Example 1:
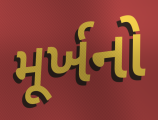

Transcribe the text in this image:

મૂર્ખનો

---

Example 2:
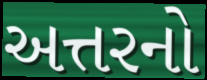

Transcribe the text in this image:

અત્તરનો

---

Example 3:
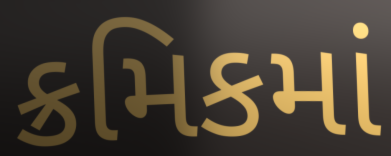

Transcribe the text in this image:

ક્રમિકમાં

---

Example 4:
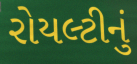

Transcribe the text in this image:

રોયલ્ટીનું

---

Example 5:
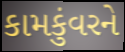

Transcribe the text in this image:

કામકુંવરને